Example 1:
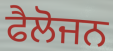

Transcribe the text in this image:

ਫੈਲੋਜਨ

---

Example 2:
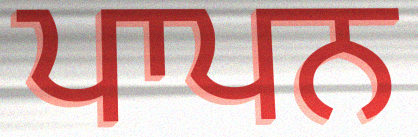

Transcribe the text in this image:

ਪਾਪਨ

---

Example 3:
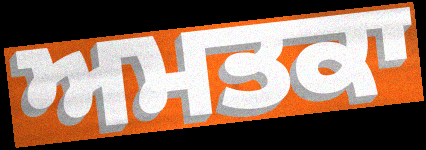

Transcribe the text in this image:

ਅਮਤਕਾ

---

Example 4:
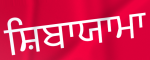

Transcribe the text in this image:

ਸ਼ਿਬਾਯਾਮਾ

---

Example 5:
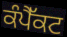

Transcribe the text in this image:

ਕੰਪੈੱਕਟ